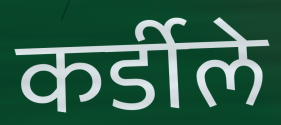
कर्डीले